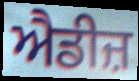
ਐਡੀਜ਼